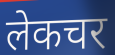
लेकचर